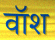
वॉश